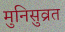
मुनिसुव्रत